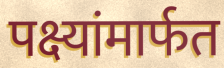
पक्ष्यांमार्फत